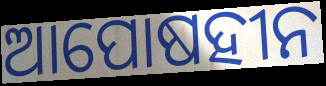
ଆପୋଷହୀନ